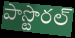
పాస్టొరల్